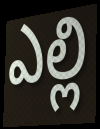
ఎల్లి